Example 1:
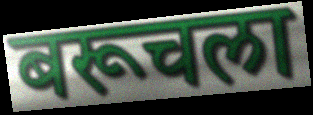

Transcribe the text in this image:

बरूचला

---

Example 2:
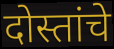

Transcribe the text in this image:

दोस्तांचे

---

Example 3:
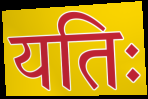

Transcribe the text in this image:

यतिः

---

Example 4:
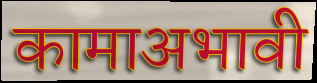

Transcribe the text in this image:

कामाअभावी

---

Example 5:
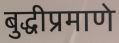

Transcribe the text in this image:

बुद्धीप्रमाणे